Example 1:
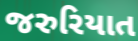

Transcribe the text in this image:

જરુરિયાત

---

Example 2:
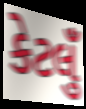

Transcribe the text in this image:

કેટલુઁ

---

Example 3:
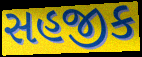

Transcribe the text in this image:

સહજીક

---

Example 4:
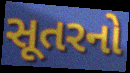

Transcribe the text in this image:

સૂતરનો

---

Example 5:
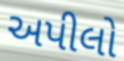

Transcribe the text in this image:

અપીલો